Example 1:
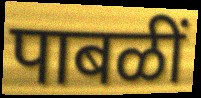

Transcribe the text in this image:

पाबळीं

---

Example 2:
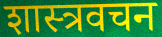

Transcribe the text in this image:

शास्त्रवचन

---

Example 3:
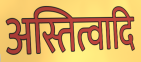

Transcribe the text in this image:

अस्तित्वादि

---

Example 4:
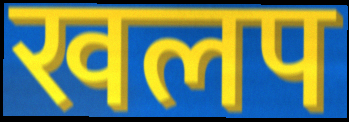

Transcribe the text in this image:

खलप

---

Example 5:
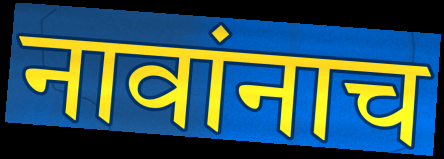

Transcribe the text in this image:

नावांनाच